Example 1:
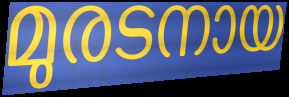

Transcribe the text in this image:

മുരടനായ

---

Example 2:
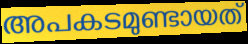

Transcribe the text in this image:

അപകടമുണ്ടായത്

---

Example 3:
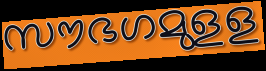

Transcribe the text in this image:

സൗഭഗമുളള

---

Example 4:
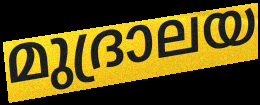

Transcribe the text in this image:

മുദ്രാലയ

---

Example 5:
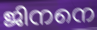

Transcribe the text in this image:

ജിനനെ